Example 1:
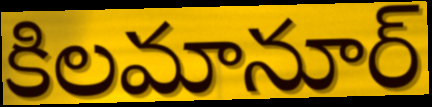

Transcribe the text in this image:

కిలమానూర్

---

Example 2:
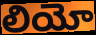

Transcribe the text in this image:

లియో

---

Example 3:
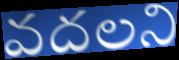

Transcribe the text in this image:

వదలని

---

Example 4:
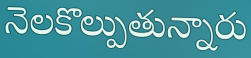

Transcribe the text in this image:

నెలకొల్పుతున్నారు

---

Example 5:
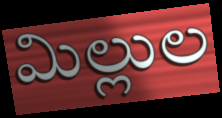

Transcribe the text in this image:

మిల్లుల